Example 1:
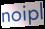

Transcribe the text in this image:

noipl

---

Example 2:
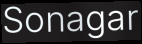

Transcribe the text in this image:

Sonagar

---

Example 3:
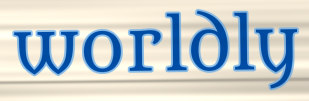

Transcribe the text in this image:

worldly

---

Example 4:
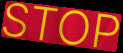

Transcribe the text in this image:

STOP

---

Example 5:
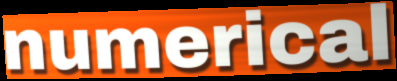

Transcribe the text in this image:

numerical